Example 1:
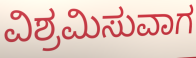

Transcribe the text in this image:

ವಿಶ್ರಮಿಸುವಾಗ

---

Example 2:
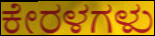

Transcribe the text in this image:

ಕೇರಳಗಳು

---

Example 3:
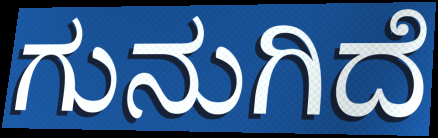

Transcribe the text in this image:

ಗುನುಗಿದೆ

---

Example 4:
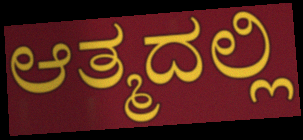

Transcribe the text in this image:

ಆತ್ಮದಲ್ಲಿ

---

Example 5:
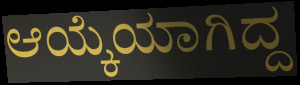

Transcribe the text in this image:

ಆಯ್ಕೆಯಾಗಿದ್ದ